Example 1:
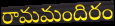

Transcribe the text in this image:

రామమందిరం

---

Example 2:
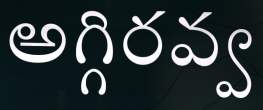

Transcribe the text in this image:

అగ్గిరవ్వ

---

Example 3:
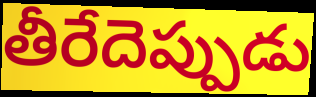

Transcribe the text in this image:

తీరేదెప్పుడు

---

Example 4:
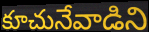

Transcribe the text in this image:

కూచునేవాడిని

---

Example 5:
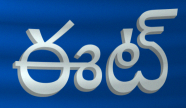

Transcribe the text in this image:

ఈట్